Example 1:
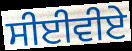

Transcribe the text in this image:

ਸੀਈਵੀਏ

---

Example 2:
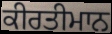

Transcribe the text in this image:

ਕੀਰਤੀਮਾਨ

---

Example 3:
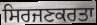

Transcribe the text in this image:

ਸਿਰਜਣਕਰਤਾ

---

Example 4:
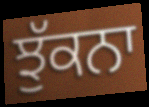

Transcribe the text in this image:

ਝੁੱਕਨਾ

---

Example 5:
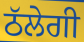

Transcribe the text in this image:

ਠੱਲੇਗੀ